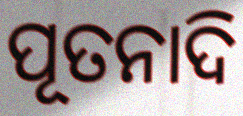
ପୂତନାଦି